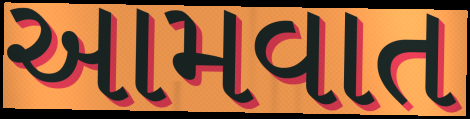
આમવાત